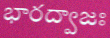
భారద్వాజః